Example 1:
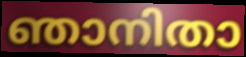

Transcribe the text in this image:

ഞാനിതാ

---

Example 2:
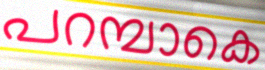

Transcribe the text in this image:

പറമ്പാകെ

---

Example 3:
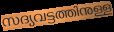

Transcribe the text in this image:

സദ്യവട്ടത്തിനുള്ള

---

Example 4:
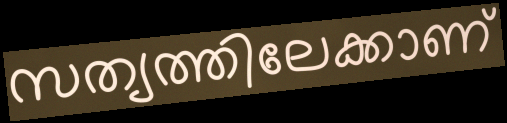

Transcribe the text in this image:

സത്യത്തിലേക്കാണ്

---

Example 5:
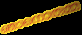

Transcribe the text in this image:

ഞാനൊരുമ്മ